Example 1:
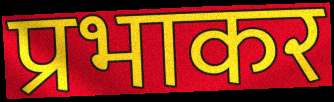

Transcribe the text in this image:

प्रभाकर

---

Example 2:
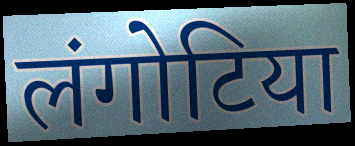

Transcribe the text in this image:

लंगोटिया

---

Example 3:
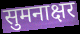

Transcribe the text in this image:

सुमनाक्षर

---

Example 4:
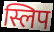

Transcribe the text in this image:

स्लिप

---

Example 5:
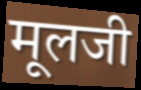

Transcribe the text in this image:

मूलजी